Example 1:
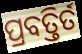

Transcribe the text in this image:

ପ୍ରବତ୍ତିର୍ତ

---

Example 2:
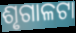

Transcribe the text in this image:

ଶୃଗାଳଟା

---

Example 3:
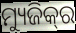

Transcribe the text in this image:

ମ୍ୟୁଜିକ୍‌ର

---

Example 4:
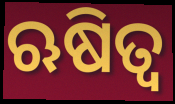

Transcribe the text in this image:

ଋଷିତ୍ୱ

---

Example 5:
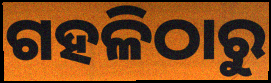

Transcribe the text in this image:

ଗହଳିଠାରୁ